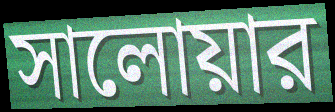
সালোয়ার